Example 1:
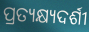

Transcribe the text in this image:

ପ୍ରତ୍ୟକ୍ଷ୍ୟଦର୍ଶୀ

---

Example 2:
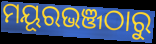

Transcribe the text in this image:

ମୟୂରଭଞ୍ଜଠାରୁ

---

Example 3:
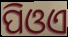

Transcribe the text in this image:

ପିଓଏ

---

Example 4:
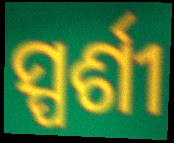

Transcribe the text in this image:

ସ୍ପର୍ଶୀ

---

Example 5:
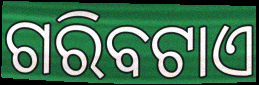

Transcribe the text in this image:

ଗରିବଟାଏ